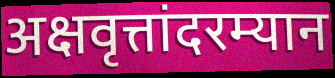
अक्षवृत्तांदरम्यान